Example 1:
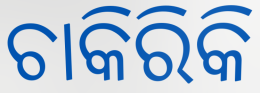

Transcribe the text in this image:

ଚାକିରିକି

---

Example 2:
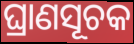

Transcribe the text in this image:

ଘ୍ରାଣସୂଚକ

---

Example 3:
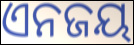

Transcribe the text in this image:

ଏନଜୟ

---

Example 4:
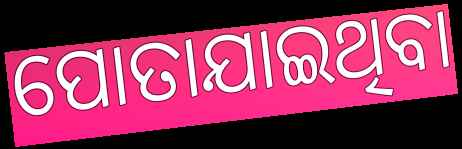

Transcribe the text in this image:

ପୋତାଯାଇଥିବା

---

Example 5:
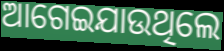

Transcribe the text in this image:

ଆଗେଇଯାଉଥିଲେ